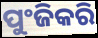
ପୁଂଜିକରି